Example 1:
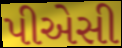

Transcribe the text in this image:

પીએસી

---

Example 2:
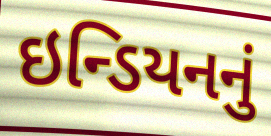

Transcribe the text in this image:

ઇન્ડિયનનું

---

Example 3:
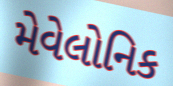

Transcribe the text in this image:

મેવેલોનિક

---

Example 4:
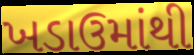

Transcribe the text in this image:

ખડાઉમાંથી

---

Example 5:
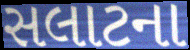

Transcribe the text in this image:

સલાટના